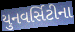
યુનવર્સિટીના